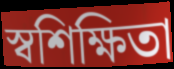
স্বশিক্ষিতা